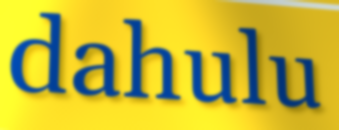
dahulu